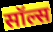
सॉल्स